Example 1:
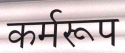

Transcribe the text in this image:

कर्मरूप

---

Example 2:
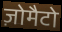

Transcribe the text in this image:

ज़ोमैटो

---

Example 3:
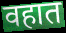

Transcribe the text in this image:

वहात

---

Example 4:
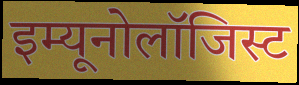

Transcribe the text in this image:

इम्यूनोलॉजिस्ट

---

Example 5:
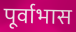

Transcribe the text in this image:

पूर्वाभास